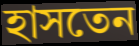
হাসতেন